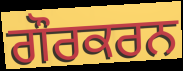
ਗੌਰਕਰਨ